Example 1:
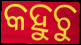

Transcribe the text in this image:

କହୁଚୁ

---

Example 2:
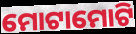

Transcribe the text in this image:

ମୋଟାମୋଟି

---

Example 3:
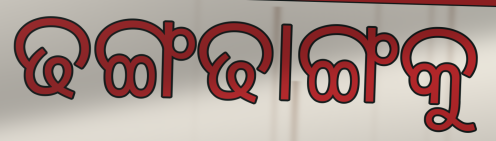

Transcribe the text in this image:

ଢଙ୍ଗଢାଙ୍ଗକୁ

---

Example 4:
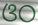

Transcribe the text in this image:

ଓଠ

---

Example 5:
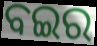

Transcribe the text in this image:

ବଇର